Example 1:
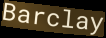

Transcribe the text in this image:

Barclay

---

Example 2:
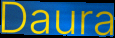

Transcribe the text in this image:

Daura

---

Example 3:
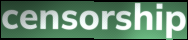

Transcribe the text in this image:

censorship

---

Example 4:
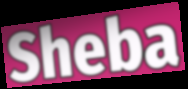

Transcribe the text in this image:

Sheba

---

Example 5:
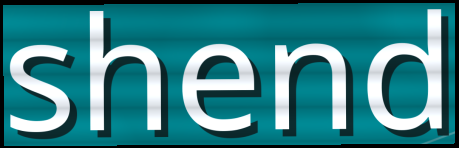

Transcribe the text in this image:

shend